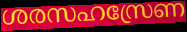
ശരസഹസ്രേണ